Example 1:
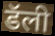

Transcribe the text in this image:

डॅली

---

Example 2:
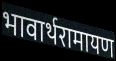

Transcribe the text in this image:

भावार्थरामायण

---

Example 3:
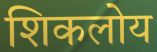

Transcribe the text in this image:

शिकलोय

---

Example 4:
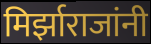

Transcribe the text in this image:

मिर्झाराजांनी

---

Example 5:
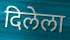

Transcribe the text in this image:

दिलेला